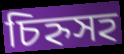
চিহ্নসহ